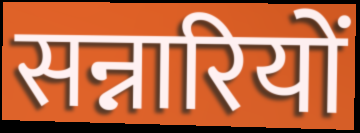
सन्नारियों